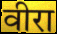
वीरा